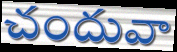
చందువా